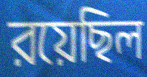
রয়েছিল